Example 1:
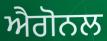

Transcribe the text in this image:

ਐਗੋਨਲ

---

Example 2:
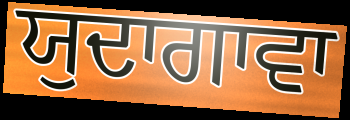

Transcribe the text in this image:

ਯੁਦਾਗਾਵਾ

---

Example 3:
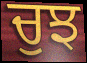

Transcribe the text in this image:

ਚੁਝ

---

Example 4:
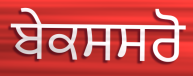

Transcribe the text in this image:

ਬੇਕਸਸਰੋ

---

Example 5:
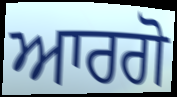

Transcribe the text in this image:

ਆਰਗੋ